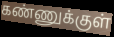
கண்ணுக்குள்